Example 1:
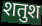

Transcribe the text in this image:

शतुश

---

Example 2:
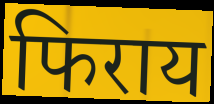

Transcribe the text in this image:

फिराय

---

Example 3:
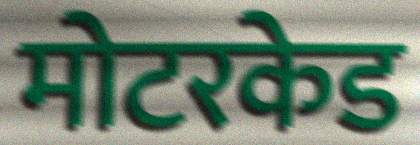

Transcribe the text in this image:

मोटरकेड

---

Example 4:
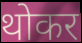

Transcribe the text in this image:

थोकर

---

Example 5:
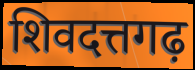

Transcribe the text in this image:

शिवदत्तगढ़